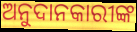
ଅନୁଦାନକାରୀଙ୍କ